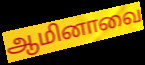
ஆமினாவை